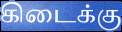
கிடைக்கு